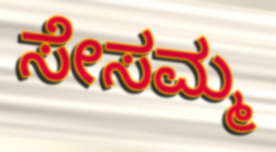
ಸೇಸಮ್ಮ